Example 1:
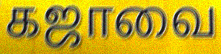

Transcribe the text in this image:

கஜாவை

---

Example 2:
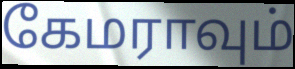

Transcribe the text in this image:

கேமராவும்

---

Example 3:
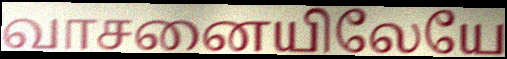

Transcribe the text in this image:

வாசனையிலேயே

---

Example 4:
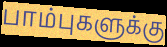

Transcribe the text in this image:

பாம்புகளுக்கு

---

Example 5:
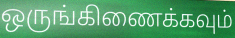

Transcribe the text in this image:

ஒருங்கிணைக்கவும்